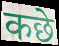
कछे